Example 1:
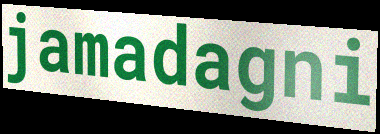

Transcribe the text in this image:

jamadagni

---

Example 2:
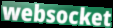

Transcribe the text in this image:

websocket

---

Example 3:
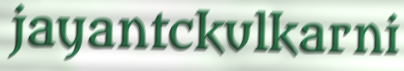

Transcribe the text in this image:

jayantckulkarni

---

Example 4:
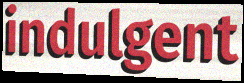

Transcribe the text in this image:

indulgent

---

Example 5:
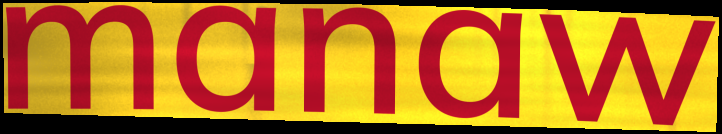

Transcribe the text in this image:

manaw